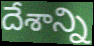
దేశాన్ని